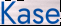
Kase